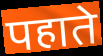
पहाते